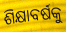
ଶିକ୍ଷାବର୍ଷକୁ